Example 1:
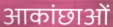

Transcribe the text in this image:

आकांछाओं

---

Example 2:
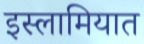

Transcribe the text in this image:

इस्लामियात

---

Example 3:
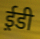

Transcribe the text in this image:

ई़डी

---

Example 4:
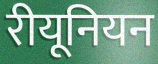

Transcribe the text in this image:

रीयूनियन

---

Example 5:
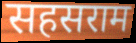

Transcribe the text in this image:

सहसराम